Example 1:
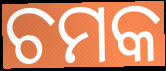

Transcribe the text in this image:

ଚମକ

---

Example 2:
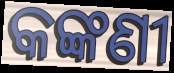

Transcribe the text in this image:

କଙ୍କଣୀ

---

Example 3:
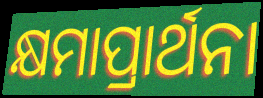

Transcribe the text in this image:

କ୍ଷମାପ୍ରାର୍ଥନା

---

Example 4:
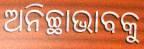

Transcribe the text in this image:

ଅନିଚ୍ଛାଭାବକୁ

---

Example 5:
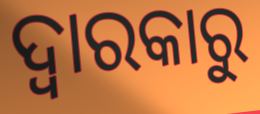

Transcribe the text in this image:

ଦ୍ଵାରକାରୁ